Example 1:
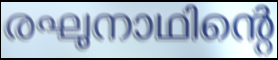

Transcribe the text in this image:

രഘുനാഥിന്റെ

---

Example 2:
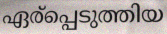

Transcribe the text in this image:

ഏര്പ്പെടുത്തിയ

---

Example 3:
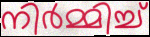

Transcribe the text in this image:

നിർമ്മിച്ച്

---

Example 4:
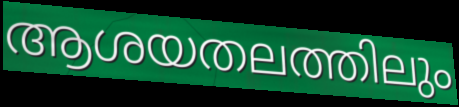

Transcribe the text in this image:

ആശയതലത്തിലും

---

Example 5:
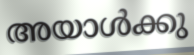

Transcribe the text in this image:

അയാൾക്കു